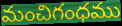
మంచిగంధము